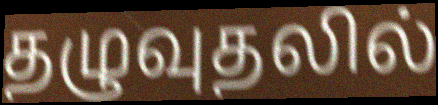
தழுவுதலில்